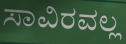
ಸಾವಿರವಲ್ಲ